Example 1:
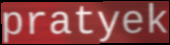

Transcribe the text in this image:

pratyek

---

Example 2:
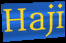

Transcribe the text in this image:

Haji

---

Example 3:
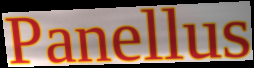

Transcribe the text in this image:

Panellus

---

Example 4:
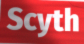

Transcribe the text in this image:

Scyth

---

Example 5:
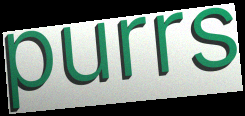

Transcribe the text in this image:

purrs